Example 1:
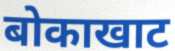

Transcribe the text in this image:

बोकाखाट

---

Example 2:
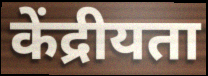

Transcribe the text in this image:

केंद्रीयता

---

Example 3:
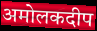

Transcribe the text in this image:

अमोलकदीप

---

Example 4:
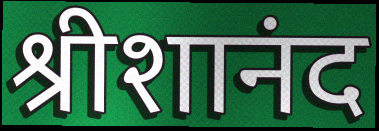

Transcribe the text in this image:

श्रीशानंद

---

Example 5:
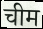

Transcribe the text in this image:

चीम